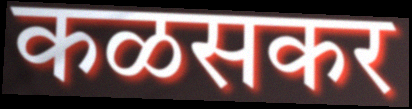
कळसकर